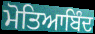
ਮੋਤਿਆਬਿੰਦ